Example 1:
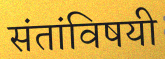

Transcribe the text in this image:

संतांविषयी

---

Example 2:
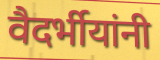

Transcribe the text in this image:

वैदर्भीयांनी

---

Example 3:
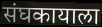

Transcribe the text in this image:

संघकायाला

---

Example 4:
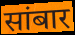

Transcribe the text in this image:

सांबार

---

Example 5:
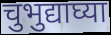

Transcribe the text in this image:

चुभुद्याघ्या